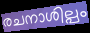
രചനാശില്പം